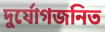
দুর্যোগজনিত